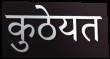
कुठेयत